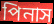
পিনাস